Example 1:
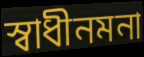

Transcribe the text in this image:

স্বাধীনমনা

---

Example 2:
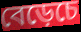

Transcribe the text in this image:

বেড়েচে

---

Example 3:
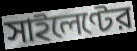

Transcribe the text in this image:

সাইলেণ্টের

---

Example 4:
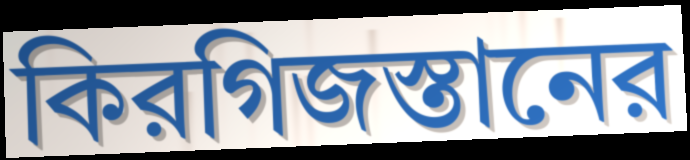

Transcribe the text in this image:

কিরগিজস্তানের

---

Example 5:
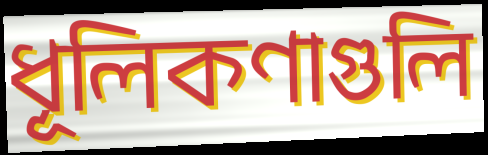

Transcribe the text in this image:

ধূলিকণাগুলি